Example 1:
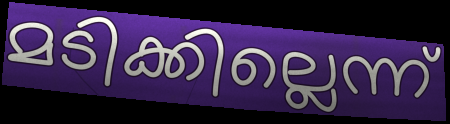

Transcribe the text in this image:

മടിക്കില്ലെന്ന്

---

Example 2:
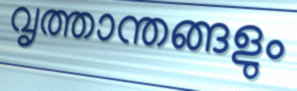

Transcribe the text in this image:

വൃത്താന്തങ്ങളും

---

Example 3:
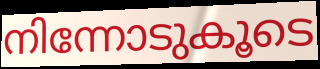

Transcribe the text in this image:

നിന്നോടുകൂടെ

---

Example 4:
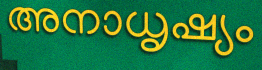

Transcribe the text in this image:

അനാധൃഷ്യം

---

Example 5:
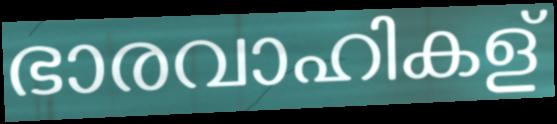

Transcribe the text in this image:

ഭാരവാഹികള്